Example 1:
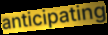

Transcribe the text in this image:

anticipating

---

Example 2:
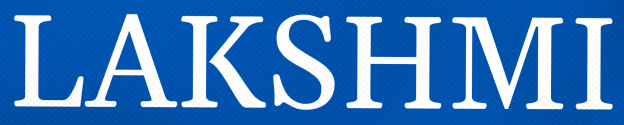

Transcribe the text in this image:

LAKSHMI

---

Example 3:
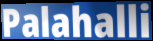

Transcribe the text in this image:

Palahalli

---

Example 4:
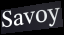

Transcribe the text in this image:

Savoy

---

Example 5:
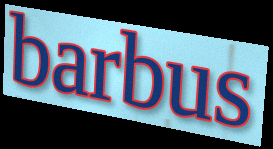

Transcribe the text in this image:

barbus